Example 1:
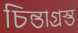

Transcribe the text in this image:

চিন্তাগ্রস্ত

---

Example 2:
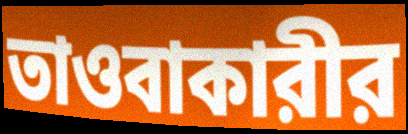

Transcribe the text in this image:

তাওবাকারীর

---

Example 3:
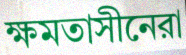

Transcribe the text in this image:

ক্ষমতাসীনেরা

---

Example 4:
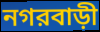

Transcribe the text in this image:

নগরবাড়ী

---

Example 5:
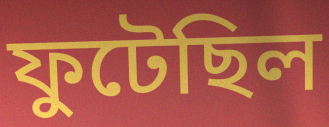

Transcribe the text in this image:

ফুটেছিল